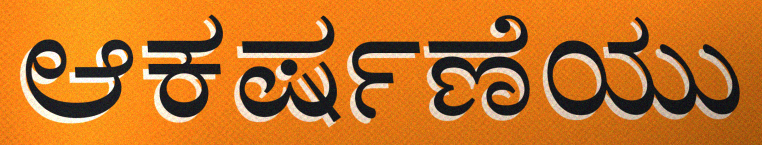
ಆಕರ್ಷಣೆಯು